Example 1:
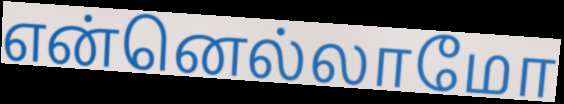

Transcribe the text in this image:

என்னெல்லாமோ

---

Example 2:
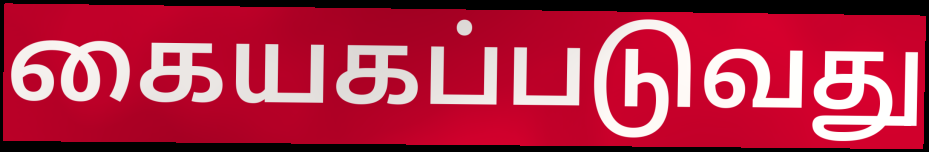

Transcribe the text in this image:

கையகப்படுவது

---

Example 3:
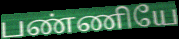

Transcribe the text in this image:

பண்ணியே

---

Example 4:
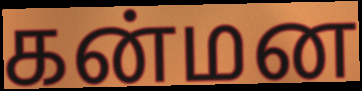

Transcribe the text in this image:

கன்மன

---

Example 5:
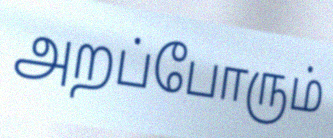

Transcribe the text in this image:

அறப்போரும்